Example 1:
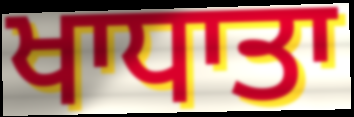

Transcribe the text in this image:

ਖਾਧਾਤਾ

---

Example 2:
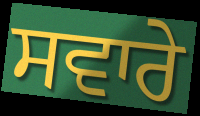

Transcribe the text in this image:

ਸਵਾਰੇ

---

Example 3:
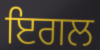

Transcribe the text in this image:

ਇਗਲ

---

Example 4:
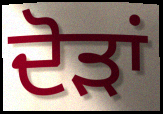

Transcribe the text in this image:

ਦੋੜਾਂ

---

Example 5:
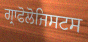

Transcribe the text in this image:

ਗ੍ਰਾਫੋਲੋਜਿਸਟਸ